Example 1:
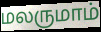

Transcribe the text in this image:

மலருமாம்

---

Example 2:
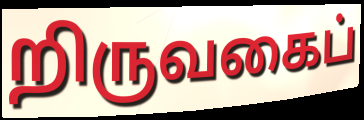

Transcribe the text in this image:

றிருவகைப்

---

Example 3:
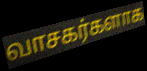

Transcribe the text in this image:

வாசகர்களாக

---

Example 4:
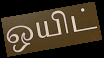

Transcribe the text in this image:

ஒயிட்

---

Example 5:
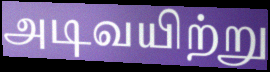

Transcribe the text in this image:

அடிவயிற்று